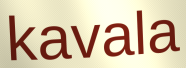
kavala